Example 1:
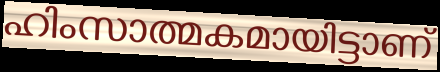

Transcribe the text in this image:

ഹിംസാത്മകമായിട്ടാണ്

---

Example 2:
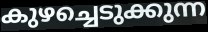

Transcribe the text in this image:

കുഴച്ചെടുക്കുന്ന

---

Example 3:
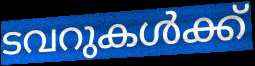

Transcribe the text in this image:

ടവറുകൾക്ക്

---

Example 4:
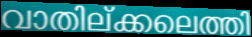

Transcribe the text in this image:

വാതില്ക്കലെത്തി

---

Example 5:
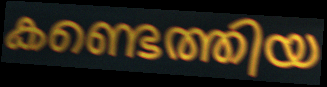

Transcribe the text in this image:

കണ്ടെത്തിയ